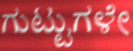
ಗುಟ್ಟುಗಳೇ